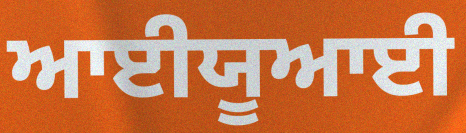
ਆਈਯੂਆਈ